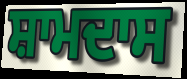
ਸ਼ਾਮਦਾਸ